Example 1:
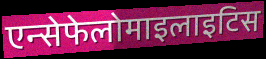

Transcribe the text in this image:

एन्सेफेलोमाइलाइटिस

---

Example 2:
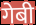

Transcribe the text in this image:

गेबी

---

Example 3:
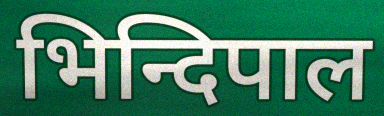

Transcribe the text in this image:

भिन्दिपाल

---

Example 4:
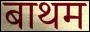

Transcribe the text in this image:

बाथम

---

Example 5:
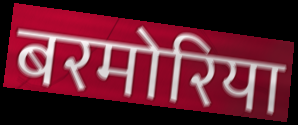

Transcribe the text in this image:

बरमोरिया